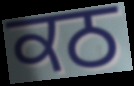
ਕਠ